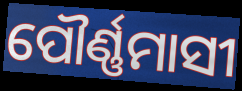
ପୌର୍ଣ୍ଣମାସୀ